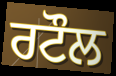
ਰਟੌਲ